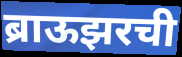
ब्राऊझरची